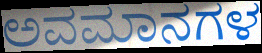
ಅವಮಾನಗಳ